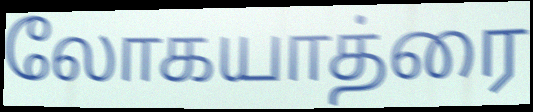
லோகயாத்ரை